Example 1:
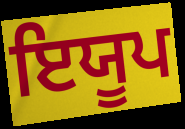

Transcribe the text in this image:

ਇਯੂਪ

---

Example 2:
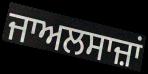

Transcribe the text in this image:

ਜਾਅਲਸਾਜ਼ਾਂ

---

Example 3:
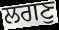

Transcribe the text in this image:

ਲਗਣੁ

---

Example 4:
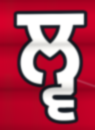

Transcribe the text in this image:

ਲ੍ਵ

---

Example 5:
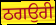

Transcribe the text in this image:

ਠਗਉਰੀ